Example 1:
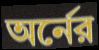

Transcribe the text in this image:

অর্নের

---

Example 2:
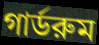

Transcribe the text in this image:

গার্ডরুম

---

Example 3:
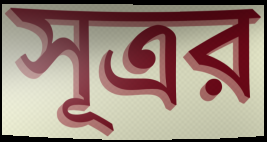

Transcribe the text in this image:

সূত্রর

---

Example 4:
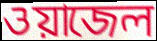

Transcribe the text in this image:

ওয়াজেল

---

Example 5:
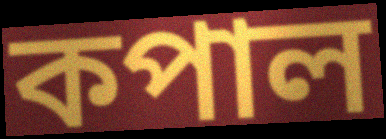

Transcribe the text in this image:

কপাল